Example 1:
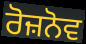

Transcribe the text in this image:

ਰੋਜ਼ਨੋਵ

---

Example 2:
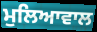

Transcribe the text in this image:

ਮੁਲਿਆਵਾਲ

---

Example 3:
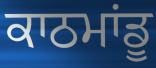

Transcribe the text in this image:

ਕਾਠਮਾਂਡੂ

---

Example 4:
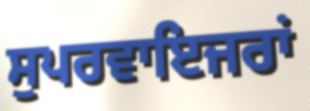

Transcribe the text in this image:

ਸੁਪਰਵਾਇਜਰਾਂ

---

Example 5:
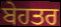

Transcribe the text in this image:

ਬੇਹਤਰ